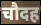
चौदह